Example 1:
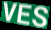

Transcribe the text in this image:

VES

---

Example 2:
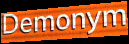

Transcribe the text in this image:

Demonym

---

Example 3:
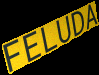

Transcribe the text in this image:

FELUDA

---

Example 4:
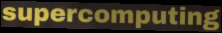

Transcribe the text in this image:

supercomputing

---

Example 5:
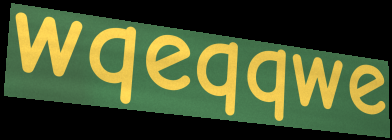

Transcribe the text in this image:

wqeqqwe